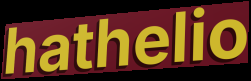
hathelio